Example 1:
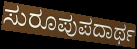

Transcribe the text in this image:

ಸುರೂಪುಪದಾರ್ಥ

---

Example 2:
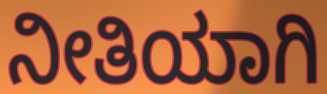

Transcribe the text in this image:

ನೀತಿಯಾಗಿ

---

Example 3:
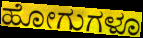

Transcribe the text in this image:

ಹೋಗುಗಳೂ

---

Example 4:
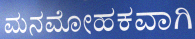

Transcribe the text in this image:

ಮನಮೋಹಕವಾಗಿ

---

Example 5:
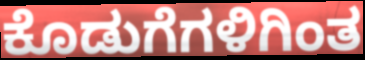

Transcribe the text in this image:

ಕೊಡುಗೆಗಳಿಗಿಂತ